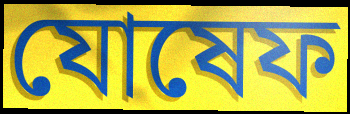
যোষেফ